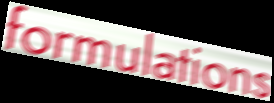
formulations